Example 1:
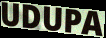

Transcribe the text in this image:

UDUPA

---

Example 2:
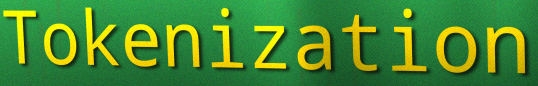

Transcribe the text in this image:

Tokenization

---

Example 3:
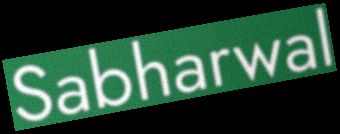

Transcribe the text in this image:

Sabharwal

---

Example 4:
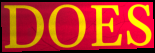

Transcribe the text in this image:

DOES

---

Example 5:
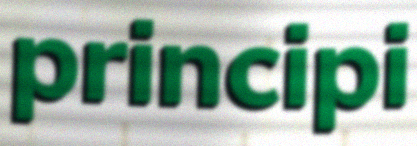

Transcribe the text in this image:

principi